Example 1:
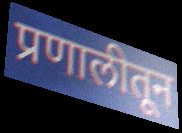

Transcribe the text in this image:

प्रणालीतून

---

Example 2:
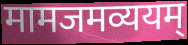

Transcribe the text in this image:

मामजमव्ययम्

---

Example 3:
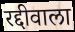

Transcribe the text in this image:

रद्दीवाला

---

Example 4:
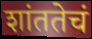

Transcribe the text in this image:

शांततेचं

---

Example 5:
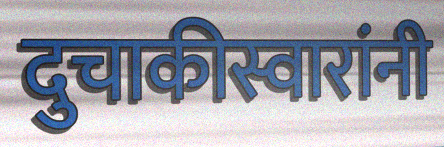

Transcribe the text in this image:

दुचाकीस्वारांनी